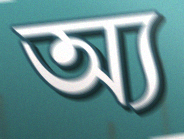
অ্য